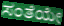
ಸಂತೆಯೇ